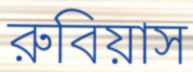
রুবিয়াস